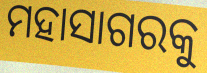
ମହାସାଗରକୁ